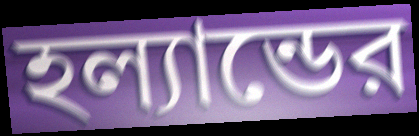
হল্যান্ডের